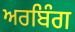
ਅਰਬਿੰਗ